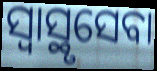
ସ୍ୱାସ୍ଥୃସେବା